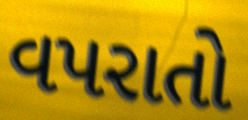
વપરાતો